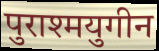
पुराश्मयुगीन